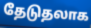
தேடுதலாக